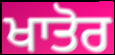
ਖਾਤੋਰ